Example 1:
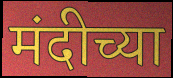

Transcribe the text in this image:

मंदीच्या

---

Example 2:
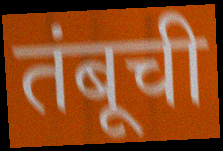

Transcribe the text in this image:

तंबूची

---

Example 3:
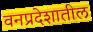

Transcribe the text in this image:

वनप्रदेशातील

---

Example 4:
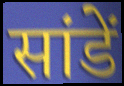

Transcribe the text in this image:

सांडें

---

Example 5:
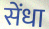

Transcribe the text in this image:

सेंधा